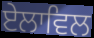
ਏਲਾਵਿਲ